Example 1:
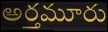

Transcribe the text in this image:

అర్తమూరు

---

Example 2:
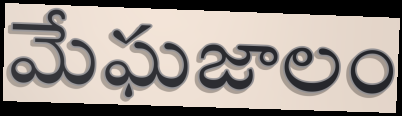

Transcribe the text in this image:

మేఘజాలం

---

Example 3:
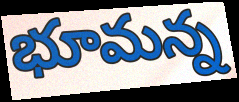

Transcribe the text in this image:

భూమన్న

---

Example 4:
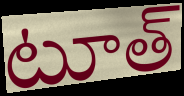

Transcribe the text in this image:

టూత్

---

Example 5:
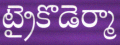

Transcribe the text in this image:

ట్రైకొడెర్మా